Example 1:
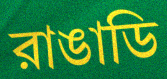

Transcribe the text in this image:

রাঙাডি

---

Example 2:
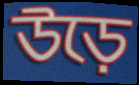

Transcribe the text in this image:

উড়ে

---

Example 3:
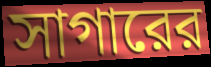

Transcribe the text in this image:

সাগারের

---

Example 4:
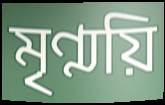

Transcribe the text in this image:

মৃণ্ময়ি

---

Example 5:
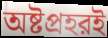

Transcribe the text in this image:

অষ্টপ্রহরই